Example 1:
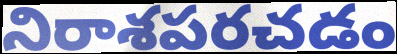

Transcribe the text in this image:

నిరాశపరచడం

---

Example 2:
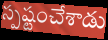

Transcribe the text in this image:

స్పష్టంచేశాడు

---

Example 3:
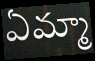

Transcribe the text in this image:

ఏమ్మా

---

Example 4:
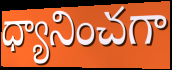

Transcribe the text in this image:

ధ్యానించగా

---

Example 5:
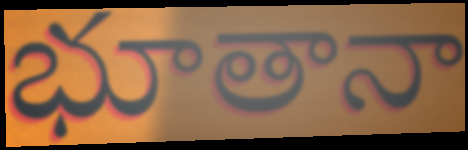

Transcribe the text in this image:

భూతానా